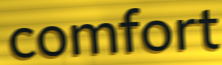
comfort